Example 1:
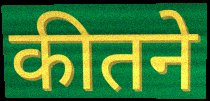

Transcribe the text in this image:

कीतने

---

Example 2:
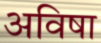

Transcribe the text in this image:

अविषा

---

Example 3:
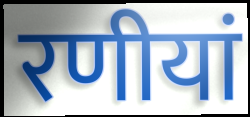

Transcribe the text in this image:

रणीयां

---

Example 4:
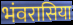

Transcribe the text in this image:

भंवरासिया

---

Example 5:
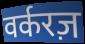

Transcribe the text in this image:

वर्करज़